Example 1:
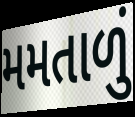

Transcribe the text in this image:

મમતાળું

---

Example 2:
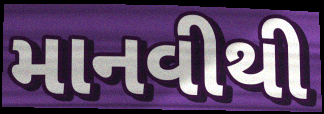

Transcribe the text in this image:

માનવીથી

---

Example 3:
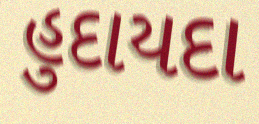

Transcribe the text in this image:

હુદાયદા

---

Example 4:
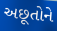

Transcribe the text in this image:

અછૂતોને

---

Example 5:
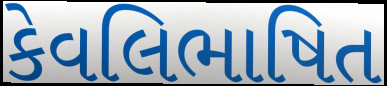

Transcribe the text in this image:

કેવલિભાષિત